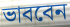
ভাববেন